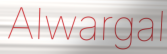
Alwargal